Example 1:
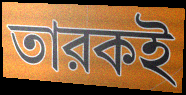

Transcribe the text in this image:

তারকই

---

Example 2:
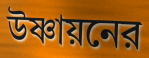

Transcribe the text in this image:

উষ্ণায়নের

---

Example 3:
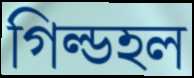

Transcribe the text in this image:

গিল্ডহল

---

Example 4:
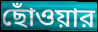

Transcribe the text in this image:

ছোঁওয়ার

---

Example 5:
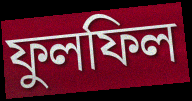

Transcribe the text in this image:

ফুলফিল